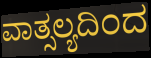
ವಾತ್ಸಲ್ಯದಿಂದ